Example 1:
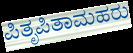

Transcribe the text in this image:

ಪಿತೃಪಿತಾಮಹರು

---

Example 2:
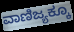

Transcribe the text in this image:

ವಾಣಿಜ್ಯಕ್ಕೂ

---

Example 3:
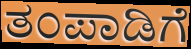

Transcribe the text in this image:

ತಂಪಾಡಿಗೆ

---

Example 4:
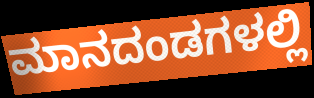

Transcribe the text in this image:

ಮಾನದಂಡಗಳಲ್ಲಿ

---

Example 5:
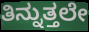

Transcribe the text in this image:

ತಿನ್ನುತ್ತಲೇ